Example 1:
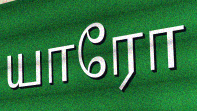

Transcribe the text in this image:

யாரோ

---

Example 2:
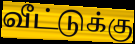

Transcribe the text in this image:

வீட்டுக்கு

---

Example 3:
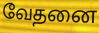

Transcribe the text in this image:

வேதனை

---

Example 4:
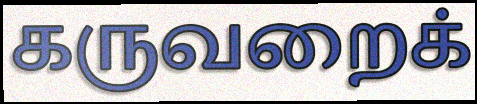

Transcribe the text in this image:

கருவறைக்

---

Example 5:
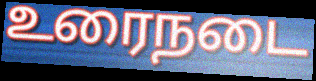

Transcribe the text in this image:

உரைநடை